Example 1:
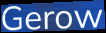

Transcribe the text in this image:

Gerow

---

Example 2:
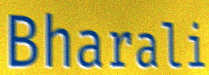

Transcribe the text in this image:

Bharali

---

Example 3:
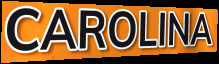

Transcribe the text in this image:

CAROLINA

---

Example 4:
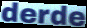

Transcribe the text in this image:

derde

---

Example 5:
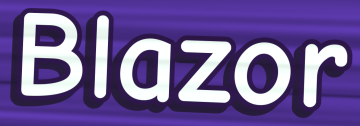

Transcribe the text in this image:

Blazor